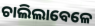
ଚାଲିଲାବେଳେ